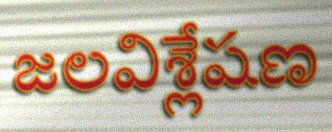
జలవిశ్లేషణ